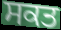
ਸਕਤ